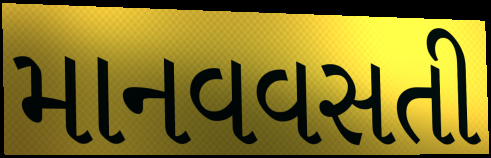
માનવવસતી